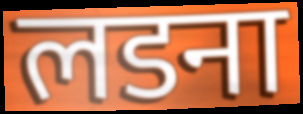
लडना